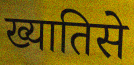
ख्यातिसे